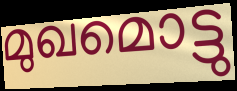
മുഖമൊട്ടു